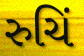
રુચિં